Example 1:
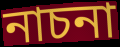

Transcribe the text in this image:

নাচনা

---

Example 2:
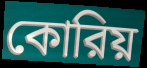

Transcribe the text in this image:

কোরিয়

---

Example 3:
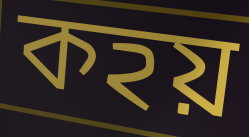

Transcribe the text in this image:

কহয়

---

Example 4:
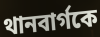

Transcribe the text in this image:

থানবার্গকে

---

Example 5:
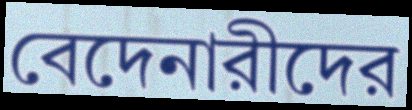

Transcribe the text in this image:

বেদেনারীদের